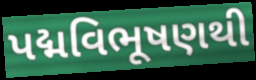
પદ્મવિભૂષણથી